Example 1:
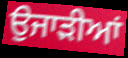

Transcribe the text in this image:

ਉਜਾੜੀਆਂ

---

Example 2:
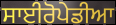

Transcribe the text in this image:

ਸਾਈਰੋਪੇਡੀਆ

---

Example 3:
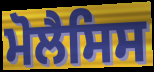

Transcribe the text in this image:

ਮੋਲੈਸਿਸ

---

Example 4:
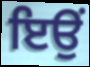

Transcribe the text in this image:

ਇਉਂ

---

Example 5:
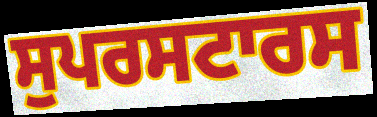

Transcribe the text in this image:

ਸੁਪਰਸਟਾਰਸ